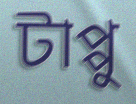
টাপ্পু